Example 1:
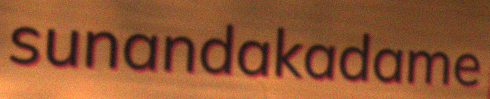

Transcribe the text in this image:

sunandakadame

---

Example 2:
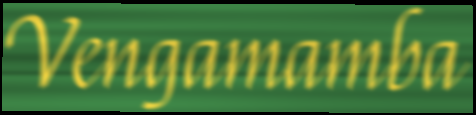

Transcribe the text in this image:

Vengamamba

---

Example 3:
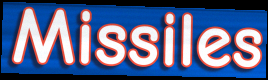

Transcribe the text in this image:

Missiles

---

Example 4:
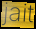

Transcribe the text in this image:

jait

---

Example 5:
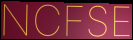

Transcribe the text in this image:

NCFSE